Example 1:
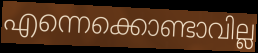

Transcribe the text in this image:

എന്നെക്കൊണ്ടാവില്ല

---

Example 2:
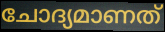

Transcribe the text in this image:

ചോദ്യമാണത്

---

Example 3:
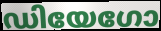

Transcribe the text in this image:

ഡിയേഗോ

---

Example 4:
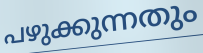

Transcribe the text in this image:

പഴുക്കുന്നതും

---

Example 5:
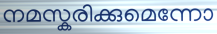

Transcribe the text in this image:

നമസ്കരിക്കുമെന്നോ